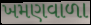
ખમણવાળા